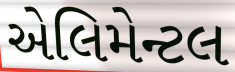
એલિમેન્ટલ